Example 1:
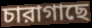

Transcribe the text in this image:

চারাগাছে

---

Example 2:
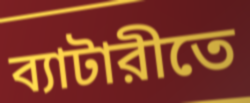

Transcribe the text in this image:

ব্যাটারীতে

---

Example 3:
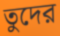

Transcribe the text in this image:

তুদের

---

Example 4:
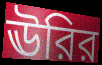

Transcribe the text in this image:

ঊরির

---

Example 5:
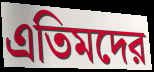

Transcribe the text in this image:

এতিমদের